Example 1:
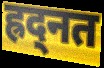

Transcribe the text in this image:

ह्रद्नत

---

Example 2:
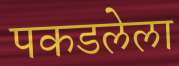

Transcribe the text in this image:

पकडलेला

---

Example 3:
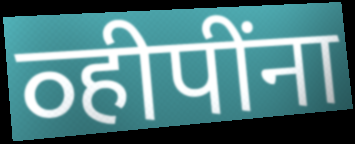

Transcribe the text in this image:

व्हीपींना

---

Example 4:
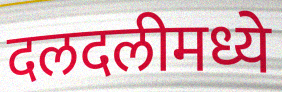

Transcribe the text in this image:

दलदलीमध्ये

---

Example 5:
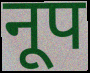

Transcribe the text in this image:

नूप